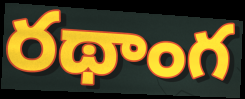
రథాంగ